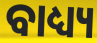
ବାଧ୍ୟ୍ୟ